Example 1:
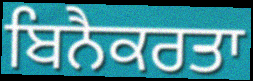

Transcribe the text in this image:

ਬਿਨੈਕਰਤਾ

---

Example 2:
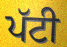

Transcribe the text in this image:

ਪੱਟੀ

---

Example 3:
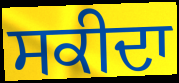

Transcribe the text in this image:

ਸਕੀਦਾ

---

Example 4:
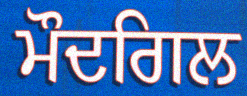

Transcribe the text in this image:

ਮੌਦਗਿਲ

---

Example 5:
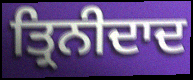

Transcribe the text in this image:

ਤ੍ਰਿਨੀਦਾਦ